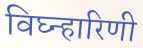
विघ्न्हारिणी